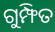
ଗୁମ୍ଫିତ